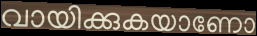
വായിക്കുകയാണോ